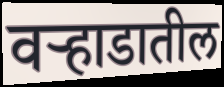
वऱ्हाडातील